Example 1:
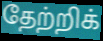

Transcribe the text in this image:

தேற்றிக்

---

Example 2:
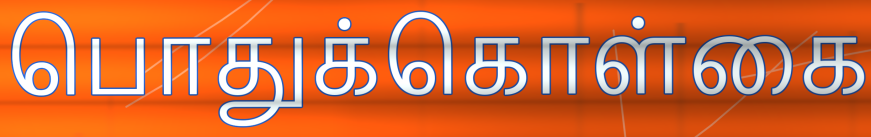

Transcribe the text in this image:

பொதுக்கொள்கை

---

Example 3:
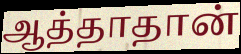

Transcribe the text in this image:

ஆத்தாதான்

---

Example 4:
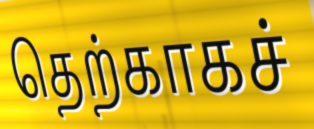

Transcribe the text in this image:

தெற்காகச்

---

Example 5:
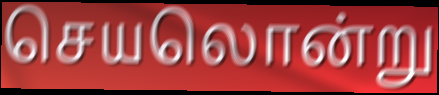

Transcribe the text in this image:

செயலொன்று